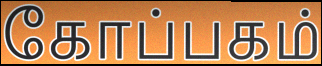
கோப்பகம்